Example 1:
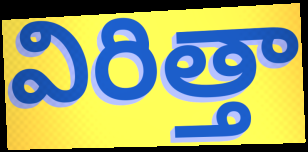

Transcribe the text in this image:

విరిత్తా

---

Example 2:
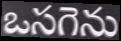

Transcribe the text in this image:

ఒసగెను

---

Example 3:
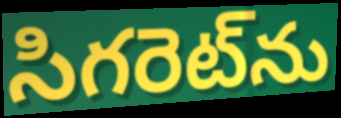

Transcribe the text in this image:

సిగరెట్‌ను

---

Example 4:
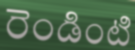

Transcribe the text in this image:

రెండింటి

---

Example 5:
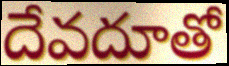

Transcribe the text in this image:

దేవదూతో